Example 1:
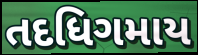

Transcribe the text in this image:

તદધિગમાય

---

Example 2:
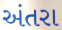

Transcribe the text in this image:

અંતરા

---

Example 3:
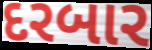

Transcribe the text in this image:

દરબાર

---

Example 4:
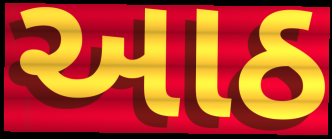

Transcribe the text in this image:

આઠ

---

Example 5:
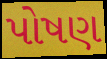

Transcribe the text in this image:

પોષણ